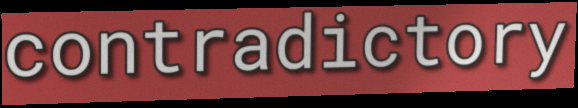
contradictory